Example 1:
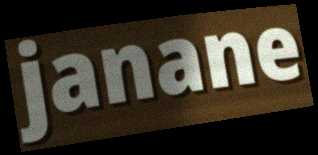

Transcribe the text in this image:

janane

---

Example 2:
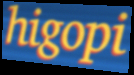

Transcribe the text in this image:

higopi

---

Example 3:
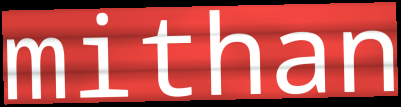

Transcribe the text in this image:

mithan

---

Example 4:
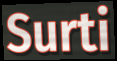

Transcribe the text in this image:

Surti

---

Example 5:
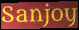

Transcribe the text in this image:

Sanjoy